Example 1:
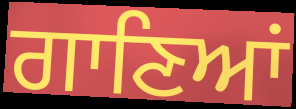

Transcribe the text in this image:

ਗਾਣਿਆਂ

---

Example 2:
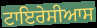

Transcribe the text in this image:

ਟਾਇਰੇਸੀਆਸ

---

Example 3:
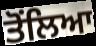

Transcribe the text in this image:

ਤੋਂਲਿਆ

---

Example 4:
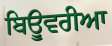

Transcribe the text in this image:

ਬਿਊਵਰੀਆ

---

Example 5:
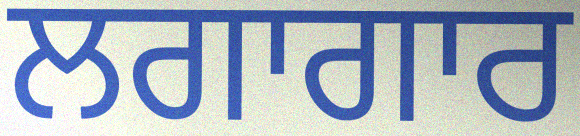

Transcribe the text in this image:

ਲਗਾਗਾਰ